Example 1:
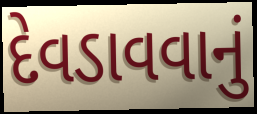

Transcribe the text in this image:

દેવડાવવાનું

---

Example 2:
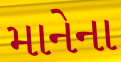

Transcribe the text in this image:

માનેના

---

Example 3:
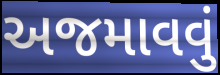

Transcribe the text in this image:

અજમાવવું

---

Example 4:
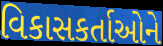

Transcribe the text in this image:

વિકાસકર્તાઓને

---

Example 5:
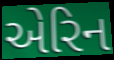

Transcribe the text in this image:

એરિન